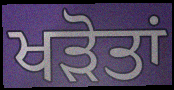
ਖੜੋਤਾਂ